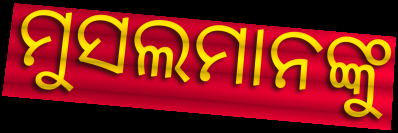
ମୁସଲମାନଙ୍କୁ